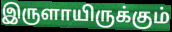
இருளாயிருக்கும்